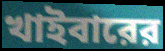
খাইবারের